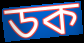
ডক